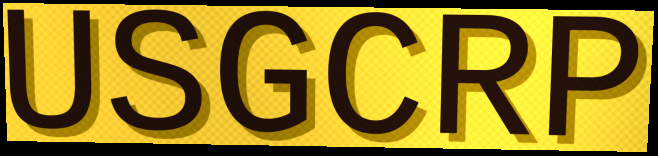
USGCRP